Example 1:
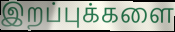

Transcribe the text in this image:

இறப்புக்களை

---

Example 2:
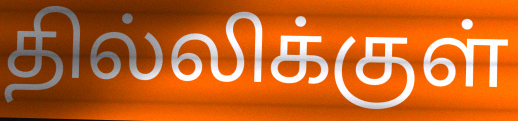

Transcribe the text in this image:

தில்லிக்குள்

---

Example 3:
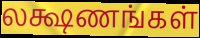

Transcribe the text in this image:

லக்ஷணங்கள்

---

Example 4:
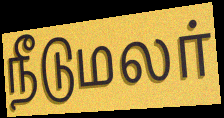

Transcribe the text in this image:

நீடுமலர்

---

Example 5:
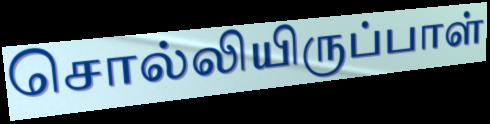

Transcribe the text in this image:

சொல்லியிருப்பாள்